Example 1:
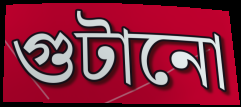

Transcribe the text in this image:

গুটানো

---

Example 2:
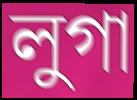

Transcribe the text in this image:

লুগা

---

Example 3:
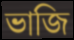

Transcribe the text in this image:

ভাজি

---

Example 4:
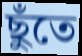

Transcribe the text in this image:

ছুঁতে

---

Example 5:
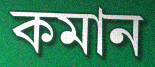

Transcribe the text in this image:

কমান